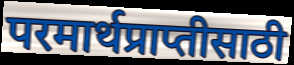
परमार्थप्राप्तीसाठी